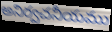
అనిర్వచనీయము